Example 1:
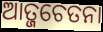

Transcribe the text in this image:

ଆତ୍ଜଚେତନା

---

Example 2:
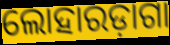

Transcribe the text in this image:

ଲୋହାରଡ଼ାଗା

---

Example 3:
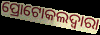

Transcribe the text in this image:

ପ୍ରୋଟୋକଲଦ୍ୱାରା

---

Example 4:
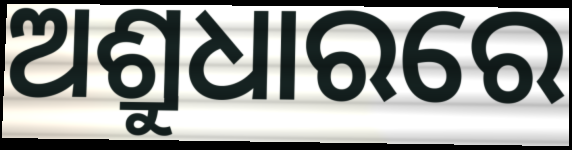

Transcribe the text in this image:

ଅଶ୍ରୁଧାରରେ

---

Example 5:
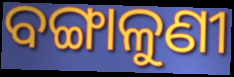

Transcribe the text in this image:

ବଙ୍ଗାଳୁଣୀ